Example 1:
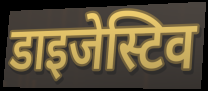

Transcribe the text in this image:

डाइजेस्टिव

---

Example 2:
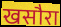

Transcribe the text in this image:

खसौरा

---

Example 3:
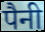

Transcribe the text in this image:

पैनी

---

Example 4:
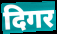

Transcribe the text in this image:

दिगर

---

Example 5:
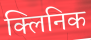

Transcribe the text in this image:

क्लिनिक